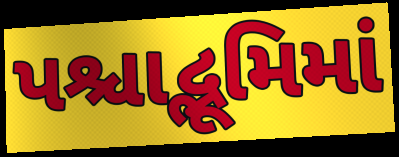
પશ્ચાદ્ભૂમિમાં